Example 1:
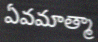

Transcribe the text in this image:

ఏవమాత్మా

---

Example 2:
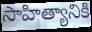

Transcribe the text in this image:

సాహిత్యానికి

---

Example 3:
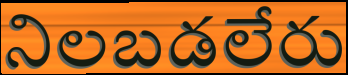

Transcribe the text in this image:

నిలబడలేరు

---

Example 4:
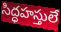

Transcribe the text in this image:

సిద్ధహస్తులే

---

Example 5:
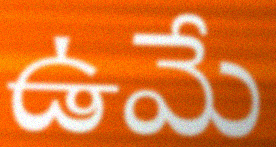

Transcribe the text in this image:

ఉమే